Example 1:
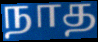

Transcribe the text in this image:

நாத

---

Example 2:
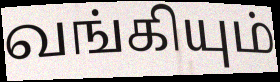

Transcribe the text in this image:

வங்கியும்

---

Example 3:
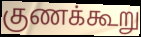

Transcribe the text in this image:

குணக்கூறு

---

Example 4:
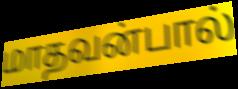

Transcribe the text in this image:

மாதவன்பால்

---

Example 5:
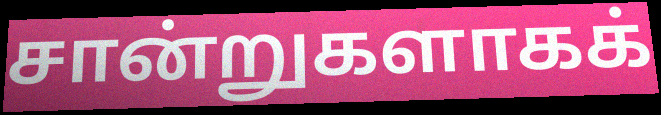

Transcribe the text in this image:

சான்றுகளாகக்